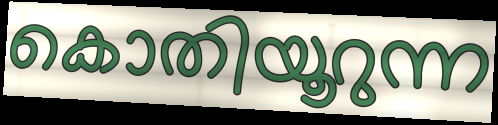
കൊതിയൂറുന്ന